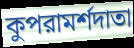
কুপরামর্শদাতা